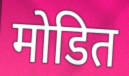
मोडित